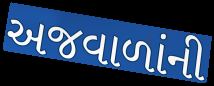
અજવાળાંની